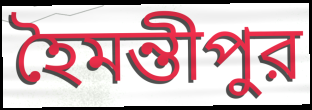
হৈমন্তীপুর